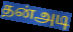
தன்அடி